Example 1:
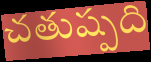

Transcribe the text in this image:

చతుష్పది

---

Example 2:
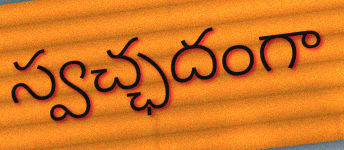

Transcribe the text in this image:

స్వచ్ఛదంగా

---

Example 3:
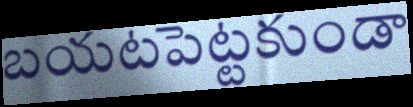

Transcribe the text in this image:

బయటపెట్టకుండా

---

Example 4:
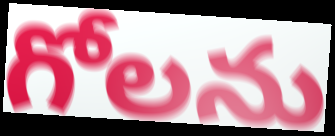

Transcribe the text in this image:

గోలను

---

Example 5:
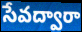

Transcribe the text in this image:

సేవద్వారా